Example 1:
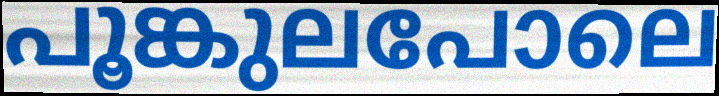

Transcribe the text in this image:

പൂങ്കുലപോലെ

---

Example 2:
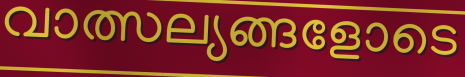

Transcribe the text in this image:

വാത്സല്യങ്ങളോടെ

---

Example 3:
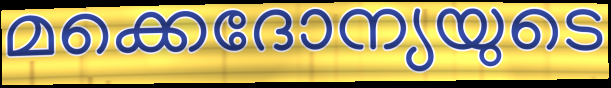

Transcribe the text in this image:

മക്കെദോന്യയുടെ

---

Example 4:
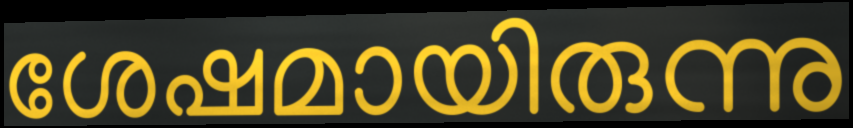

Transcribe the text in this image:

ശേഷമായിരുന്നു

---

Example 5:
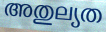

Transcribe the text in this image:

അതുല്യത